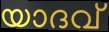
യാദവ്